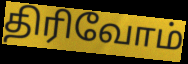
திரிவோம்